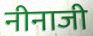
नीनाजी